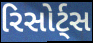
રિસોર્ટ્સ